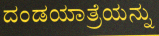
ದಂಡಯಾತ್ರೆಯನ್ನು